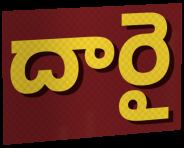
దారై